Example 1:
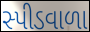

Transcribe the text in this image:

સ્પીડવાળા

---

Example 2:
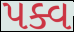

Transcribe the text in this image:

પક્વ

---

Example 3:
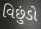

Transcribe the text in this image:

વિછુંડો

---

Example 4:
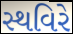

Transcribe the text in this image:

સ્થવિરે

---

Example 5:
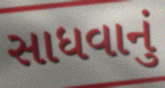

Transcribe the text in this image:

સાધવાનું